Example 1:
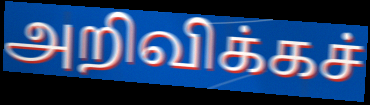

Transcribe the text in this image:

அறிவிக்கச்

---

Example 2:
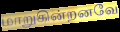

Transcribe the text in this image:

மாறுகின்றனவே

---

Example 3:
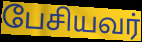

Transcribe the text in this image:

பேசியவர்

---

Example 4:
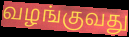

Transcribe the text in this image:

வழங்குவது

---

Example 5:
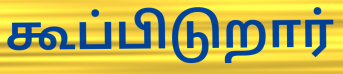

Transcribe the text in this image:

கூப்பிடுறார்